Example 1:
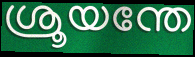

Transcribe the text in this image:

ശ്രൂയന്തേ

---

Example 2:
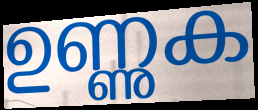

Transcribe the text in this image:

ഉണ്ണുക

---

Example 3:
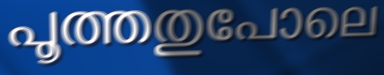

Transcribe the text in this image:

പൂത്തതുപോലെ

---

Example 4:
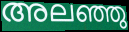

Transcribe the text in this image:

അലഞ്ഞു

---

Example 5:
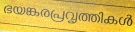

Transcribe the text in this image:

ഭയങ്കരപ്രവൃത്തികൾ